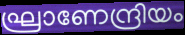
ഘ്രാണേന്ദ്രിയം